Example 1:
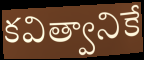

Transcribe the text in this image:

కవిత్వానికే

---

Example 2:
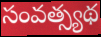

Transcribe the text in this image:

సంవత్స్యథ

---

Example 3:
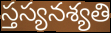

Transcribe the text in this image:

స్తస్యనశ్యతి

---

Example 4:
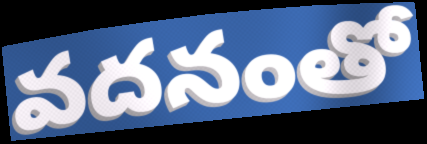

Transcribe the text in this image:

వదనంతో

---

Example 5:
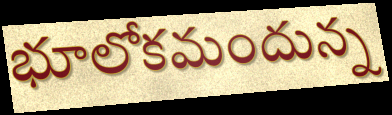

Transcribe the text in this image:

భూలోకమందున్న